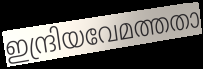
ഇന്ദ്രിയവേമത്തതാ